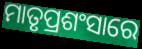
ମାତୃପ୍ରଶଂସାରେ